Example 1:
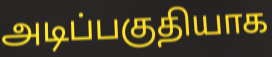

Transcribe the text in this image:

அடிப்பகுதியாக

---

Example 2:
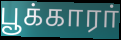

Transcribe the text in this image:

பூக்காரர்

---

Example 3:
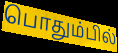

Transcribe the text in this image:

பொதும்பில்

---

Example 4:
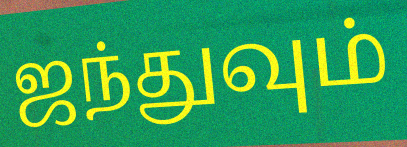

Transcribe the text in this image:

ஜந்துவும்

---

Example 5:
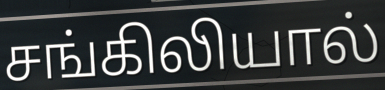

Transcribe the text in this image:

சங்கிலியால்